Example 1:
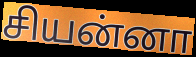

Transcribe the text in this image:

சியன்னா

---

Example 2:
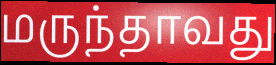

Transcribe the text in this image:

மருந்தாவது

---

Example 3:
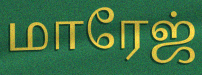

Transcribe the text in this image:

மாரேஜ்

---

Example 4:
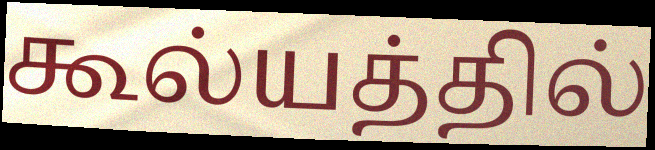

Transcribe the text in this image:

கூல்யத்தில்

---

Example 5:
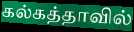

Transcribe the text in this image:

கல்கத்தாவில்